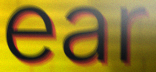
ear